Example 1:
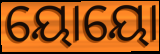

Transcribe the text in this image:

ୟୋୟୋ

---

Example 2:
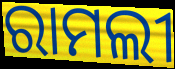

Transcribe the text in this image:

ରାମଲୀ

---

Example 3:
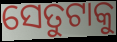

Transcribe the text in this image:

ସେତୁଟାକୁ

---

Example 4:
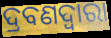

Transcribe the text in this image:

ଦ୍ରବଣଦ୍ବାରା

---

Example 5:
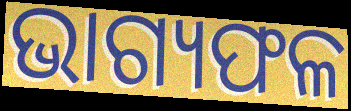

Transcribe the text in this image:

ଭାଗ୍ୟଫଳ